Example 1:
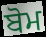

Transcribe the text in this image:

ਬੋਮ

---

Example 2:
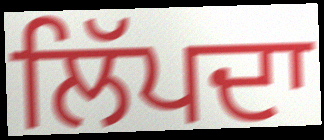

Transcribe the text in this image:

ਲਿੱਪਦਾ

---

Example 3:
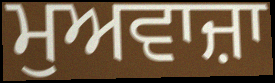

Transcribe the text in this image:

ਮੁਅਵਾਜ਼ਾ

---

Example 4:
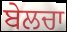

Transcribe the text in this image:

ਬੇਲਚਾ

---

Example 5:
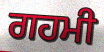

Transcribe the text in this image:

ਗਹਮੀ